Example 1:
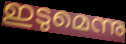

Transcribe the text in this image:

ഇടുമെന്നു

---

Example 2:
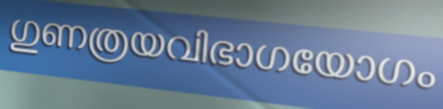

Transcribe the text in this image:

ഗുണത്രയവിഭാഗയോഗം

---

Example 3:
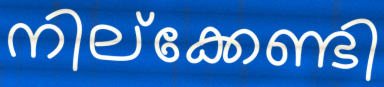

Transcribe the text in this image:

നില്ക്കേണ്ടി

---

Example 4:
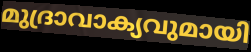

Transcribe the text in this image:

മുദ്രാവാക്യവുമായി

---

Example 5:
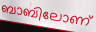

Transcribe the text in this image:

ബാബിലോണ്